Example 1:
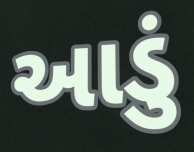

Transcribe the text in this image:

આડું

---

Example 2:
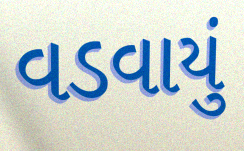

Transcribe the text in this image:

વડવાયું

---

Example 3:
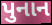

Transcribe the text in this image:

પુનાન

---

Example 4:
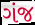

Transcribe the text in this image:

ગંજ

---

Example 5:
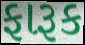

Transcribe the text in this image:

ફારૂક